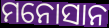
ମନୋସାନ